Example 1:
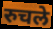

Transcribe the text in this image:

रुचले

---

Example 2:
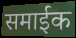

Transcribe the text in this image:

समाईक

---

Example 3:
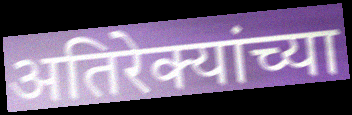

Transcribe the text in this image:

अतिरेक्‍यांच्या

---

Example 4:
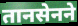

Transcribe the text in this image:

तानसेनने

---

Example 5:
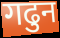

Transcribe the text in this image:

गढुन